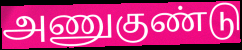
அணுகுண்டு